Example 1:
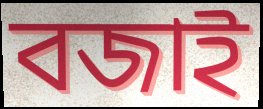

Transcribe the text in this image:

বজাই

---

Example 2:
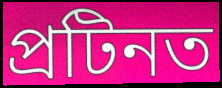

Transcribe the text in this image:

প্ৰটিনত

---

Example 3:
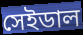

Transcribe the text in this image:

সেইডাল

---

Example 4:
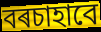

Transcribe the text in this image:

বৰচাহাবে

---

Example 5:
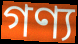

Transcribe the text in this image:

গণ্য